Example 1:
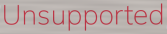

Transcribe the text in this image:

Unsupported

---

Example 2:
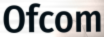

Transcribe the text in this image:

Ofcom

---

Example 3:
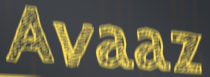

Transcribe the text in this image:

Avaaz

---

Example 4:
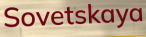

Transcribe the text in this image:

Sovetskaya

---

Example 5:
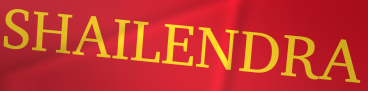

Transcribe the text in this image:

SHAILENDRA